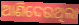
ଆଣିଦେଉଥିଲା